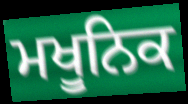
ਮਖੂਨਿਕ